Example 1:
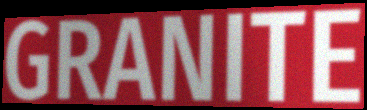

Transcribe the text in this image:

GRANITE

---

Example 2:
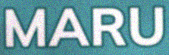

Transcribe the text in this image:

MARU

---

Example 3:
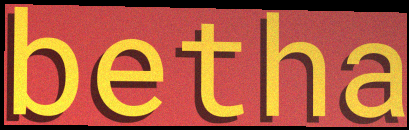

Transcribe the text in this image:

betha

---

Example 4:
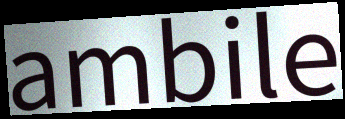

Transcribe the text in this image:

ambile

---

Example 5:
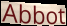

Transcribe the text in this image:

Abbot